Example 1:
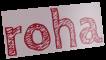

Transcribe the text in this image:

roha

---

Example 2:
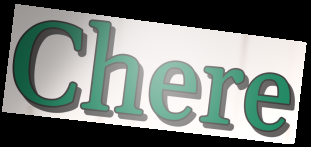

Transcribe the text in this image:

Chere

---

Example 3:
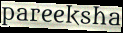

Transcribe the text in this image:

pareeksha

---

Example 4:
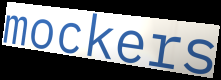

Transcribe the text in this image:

mockers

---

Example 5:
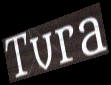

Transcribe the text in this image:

Tura